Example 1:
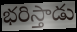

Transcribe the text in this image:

భరిస్తాడు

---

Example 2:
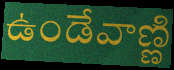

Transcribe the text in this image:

ఉండేవాణ్ణి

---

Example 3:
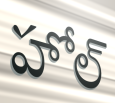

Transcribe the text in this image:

హోల్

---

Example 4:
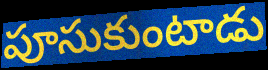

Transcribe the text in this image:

పూసుకుంటాడు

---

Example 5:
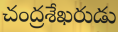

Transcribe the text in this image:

చంద్రశేఖరుడు